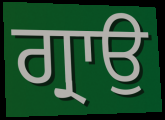
ਗ੍ਰਾਉ